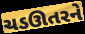
ચડઊતરને